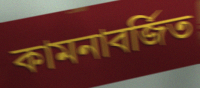
কামনাবর্জিত